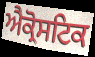
ਐਕ੍ਰੋਸਟਿਕ